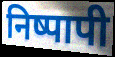
निष्पापी